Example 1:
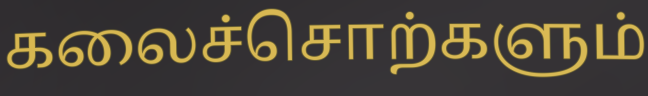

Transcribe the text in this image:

கலைச்சொற்களும்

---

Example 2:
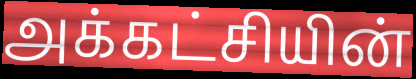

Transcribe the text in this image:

அக்கட்சியின்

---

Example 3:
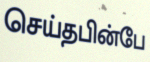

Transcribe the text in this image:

செய்தபின்பே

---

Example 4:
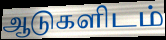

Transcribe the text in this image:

ஆடுகளிடம்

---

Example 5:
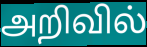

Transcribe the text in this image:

அறிவில்